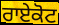
ਰਾਏਕੋਟ